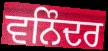
ਵਨਿੰਦਰ